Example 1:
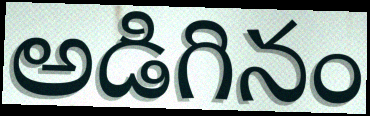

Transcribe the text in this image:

అడిగినం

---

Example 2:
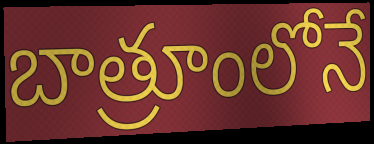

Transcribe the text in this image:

బాత్రూంలోనే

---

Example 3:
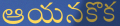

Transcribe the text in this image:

ఆయనకొక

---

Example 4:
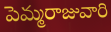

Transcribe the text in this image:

పెమ్మరాజువారి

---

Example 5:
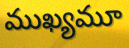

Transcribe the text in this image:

ముఖ్యమూ